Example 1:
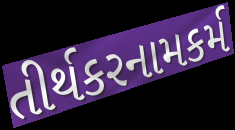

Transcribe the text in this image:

તીર્થકરનામકર્મ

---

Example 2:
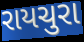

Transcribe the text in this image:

રાયચુરા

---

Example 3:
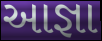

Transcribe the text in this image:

આજ્ઞા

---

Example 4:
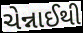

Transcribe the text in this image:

ચેન્નાઈથી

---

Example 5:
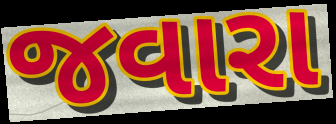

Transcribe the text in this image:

જવારા